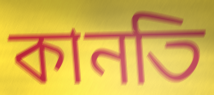
কানতি